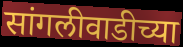
सांगलीवाडीच्या